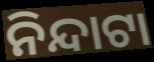
ନିନ୍ଦାଟା